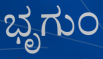
ಭೃಗುಂ